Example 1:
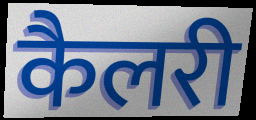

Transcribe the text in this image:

कैलरी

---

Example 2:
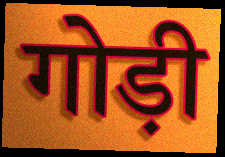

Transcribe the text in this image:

गोड़ी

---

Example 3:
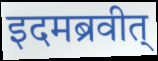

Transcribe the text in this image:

इदमब्रवीत्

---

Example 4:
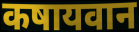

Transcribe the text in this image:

कषायवान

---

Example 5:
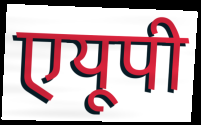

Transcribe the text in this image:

एयूपी